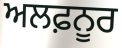
ਅਲਫ਼ਨੂਰ